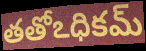
తతోఽధికమ్